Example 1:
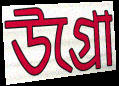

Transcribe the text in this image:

উগ্রো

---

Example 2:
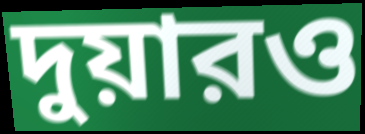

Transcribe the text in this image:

দুয়ারও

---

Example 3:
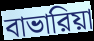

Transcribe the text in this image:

বাভারিয়া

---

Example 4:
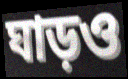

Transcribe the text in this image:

ঘাড়ও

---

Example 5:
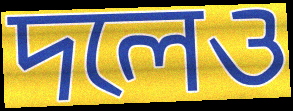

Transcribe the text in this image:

দলেও